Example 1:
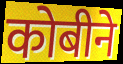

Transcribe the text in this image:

कोबीने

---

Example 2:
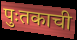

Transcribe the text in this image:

पुःतकाची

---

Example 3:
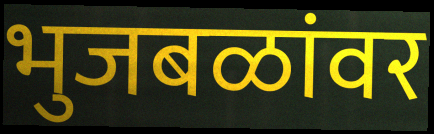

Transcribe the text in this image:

भुजबळांवर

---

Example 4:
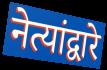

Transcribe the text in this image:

नेत्यांद्वारे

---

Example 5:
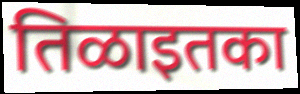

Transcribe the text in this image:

तिळाइतका